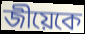
জীয়েকে